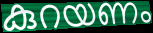
കുറയണം